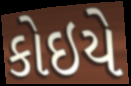
કોઇયે